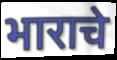
भाराचे